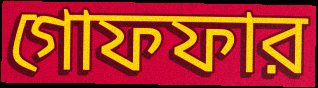
গোফফার